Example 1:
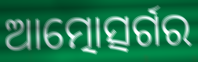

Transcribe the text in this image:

ଆତ୍ମୋତ୍ସର୍ଗର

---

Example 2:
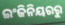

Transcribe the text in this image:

ଇଂଜିନିୟରରୁ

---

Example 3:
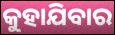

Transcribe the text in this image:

କୁହାଯିବାର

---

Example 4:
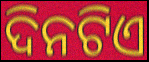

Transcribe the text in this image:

ଦିନଟିଏ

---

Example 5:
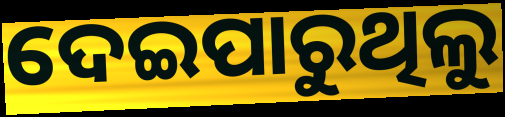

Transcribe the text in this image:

ଦେଇପାରୁଥିଲୁ